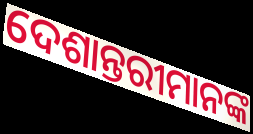
ଦେଶାନ୍ତରୀମାନଙ୍କ